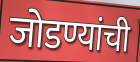
जोडण्यांची